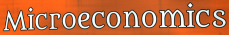
Microeconomics